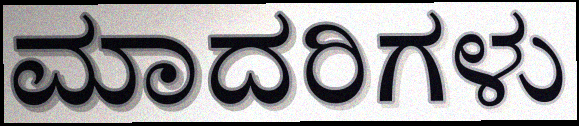
ಮಾದರಿಗಳು